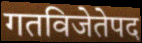
गतविजेतेपद